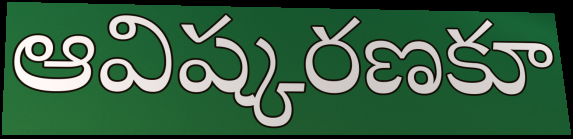
ఆవిష్కరణకూ